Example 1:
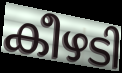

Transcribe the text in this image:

കീഴടി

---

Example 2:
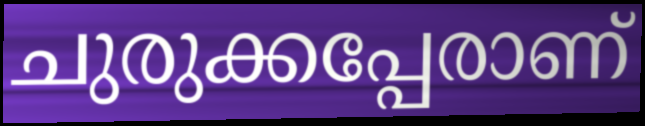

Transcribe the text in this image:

ചുരുക്കപ്പേരാണ്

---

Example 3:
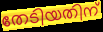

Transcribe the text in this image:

തേടിയതിന്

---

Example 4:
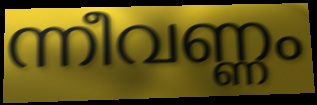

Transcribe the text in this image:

ന്നീവണ്ണം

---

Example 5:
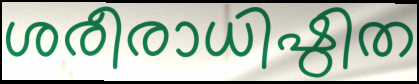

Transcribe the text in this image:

ശരീരാധിഷ്ഠിത